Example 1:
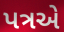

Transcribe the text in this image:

પત્રએ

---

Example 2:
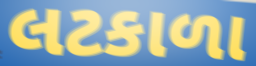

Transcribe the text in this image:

લટકાળા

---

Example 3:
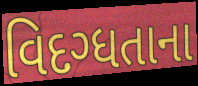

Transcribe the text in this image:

વિદગ્ધતાના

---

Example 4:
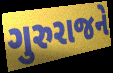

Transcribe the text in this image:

ગુરુરાજને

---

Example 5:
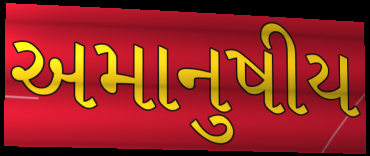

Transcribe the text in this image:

અમાનુષીય